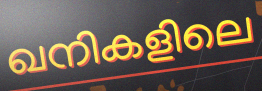
ഖനികളിലെ